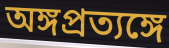
অঙ্গপ্রত্যঙ্গে